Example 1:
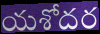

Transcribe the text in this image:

యశోదర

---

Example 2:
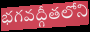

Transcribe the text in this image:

భగవద్గీతలోని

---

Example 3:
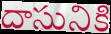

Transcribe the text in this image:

దాసునికి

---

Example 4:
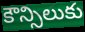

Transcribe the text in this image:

కౌన్సిలుకు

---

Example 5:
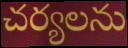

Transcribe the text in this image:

చర్యలను